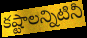
కష్టాలన్నిటినీ